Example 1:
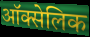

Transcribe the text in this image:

ऑक्सेलिक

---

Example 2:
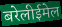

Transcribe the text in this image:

बरेलीईमेल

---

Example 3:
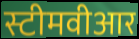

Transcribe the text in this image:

स्टीमवीआर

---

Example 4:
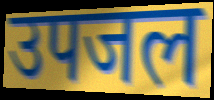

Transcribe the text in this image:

उपजल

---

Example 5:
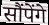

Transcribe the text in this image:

सौंपेंगे